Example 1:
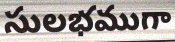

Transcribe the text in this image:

సులభముగా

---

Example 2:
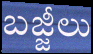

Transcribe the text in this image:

బజ్జీలు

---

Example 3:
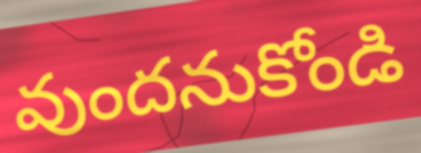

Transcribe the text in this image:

వుందనుకోండి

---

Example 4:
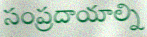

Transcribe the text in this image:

సంప్రదాయాల్ని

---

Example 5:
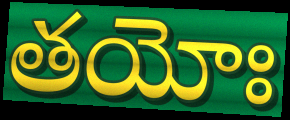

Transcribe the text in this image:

తయోః